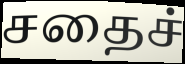
சதைச்